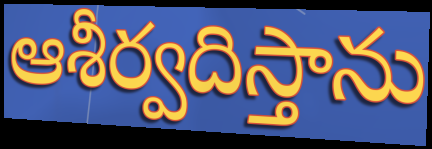
ఆశీర్వదిస్తాను